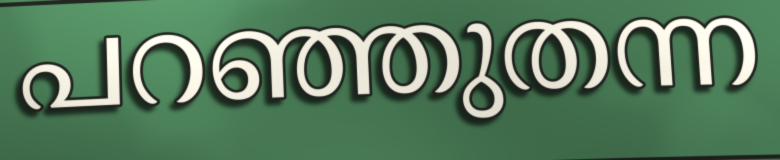
പറഞ്ഞുതന്ന